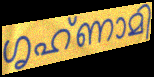
ഗൃഹ്ണാമി